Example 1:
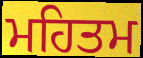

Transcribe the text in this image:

ਮਹਿਤਮ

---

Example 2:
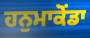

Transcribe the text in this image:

ਹਨੁਮਾਕੋਂਡਾ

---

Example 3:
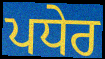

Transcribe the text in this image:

ਪਧੇਰ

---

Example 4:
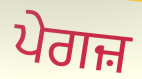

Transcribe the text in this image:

ਪੇਗਜ਼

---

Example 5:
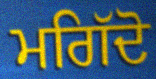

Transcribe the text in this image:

ਮਗਿੱਦੋ